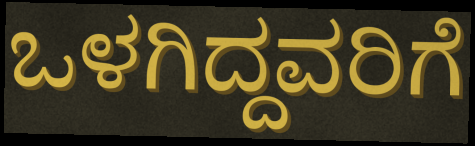
ಒಳಗಿದ್ದವರಿಗೆ